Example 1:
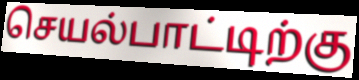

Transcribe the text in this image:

செயல்பாட்டிற்கு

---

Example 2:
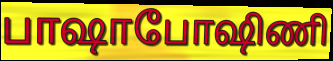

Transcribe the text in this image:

பாஷாபோஷிணி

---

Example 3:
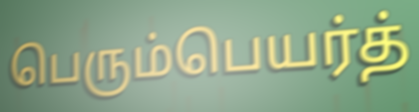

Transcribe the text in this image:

பெரும்பெயர்த்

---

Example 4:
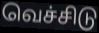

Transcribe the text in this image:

வெச்சிடு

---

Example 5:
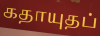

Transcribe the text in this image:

கதாயுதப்